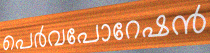
പെർവപോറേഷൻ